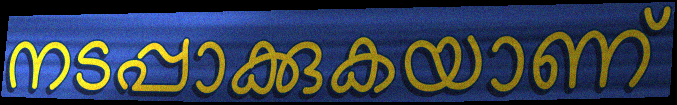
നടപ്പാക്കുകയാണ്